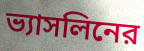
ভ্যাসলিনের